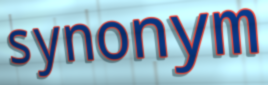
synonym